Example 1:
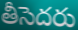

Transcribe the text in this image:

తీసెదరు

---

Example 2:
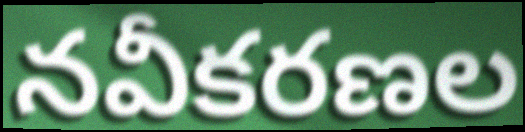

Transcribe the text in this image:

నవీకరణల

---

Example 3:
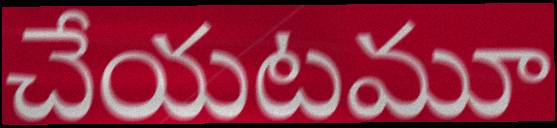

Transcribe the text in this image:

చేయటమూ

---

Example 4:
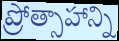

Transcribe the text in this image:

ప్రోత్సాహాన్ని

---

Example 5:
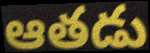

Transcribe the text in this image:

ఆతడు